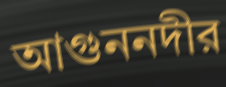
আগুননদীর